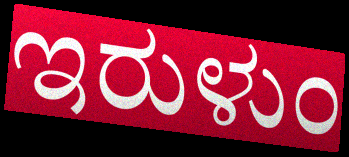
ಇರುಳುಂ